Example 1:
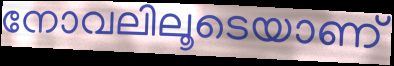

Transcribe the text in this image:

നോവലിലൂടെയാണ്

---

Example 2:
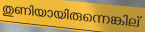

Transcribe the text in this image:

തുണിയായിരുന്നെങ്കില്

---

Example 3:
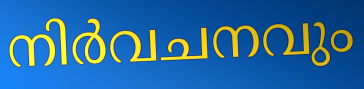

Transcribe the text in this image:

നിർവചനവും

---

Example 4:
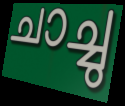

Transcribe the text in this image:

ചാച്ചു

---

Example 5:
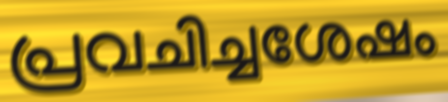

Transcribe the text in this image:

പ്രവചിച്ചശേഷം